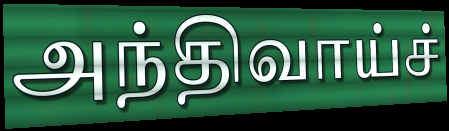
அந்திவாய்ச்